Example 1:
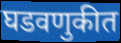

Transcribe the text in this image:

घडवणुकीत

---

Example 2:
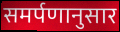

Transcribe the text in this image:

समर्पणानुसार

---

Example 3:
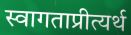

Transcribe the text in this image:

स्वागताप्रीत्यर्थ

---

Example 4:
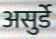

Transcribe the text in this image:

असुर्डे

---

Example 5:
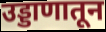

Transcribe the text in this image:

उड्डाणातून